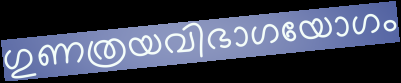
ഗുണത്രയവിഭാഗയോഗം